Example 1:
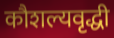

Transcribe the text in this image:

कौशल्यवृद्धी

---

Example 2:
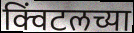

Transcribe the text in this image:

क्विंटलच्या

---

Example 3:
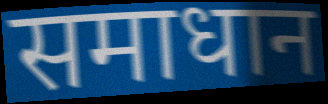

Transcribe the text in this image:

समाधान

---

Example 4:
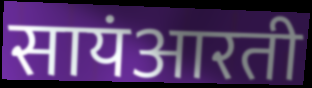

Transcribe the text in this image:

सायंआरती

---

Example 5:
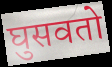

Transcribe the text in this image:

घुसवतो